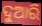
ଦୁଆରି